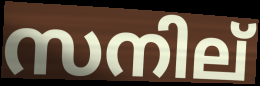
സനില്